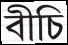
বীচি